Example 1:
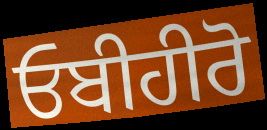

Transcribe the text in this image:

ਓਬੀਹੀਰੋ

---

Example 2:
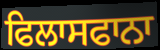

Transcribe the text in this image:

ਫਿਲਾਸਫਾਨਾ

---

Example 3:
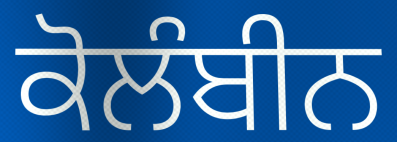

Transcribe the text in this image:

ਕੋਲੰਬੀਨ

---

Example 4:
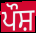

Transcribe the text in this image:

ਪੌਸ਼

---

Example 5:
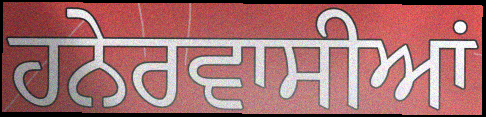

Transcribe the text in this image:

ਹਨੇਰਵਾਸੀਆਂ